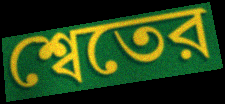
শ্বেতের